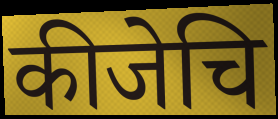
कीजेचि